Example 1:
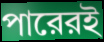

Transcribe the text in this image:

পারেরই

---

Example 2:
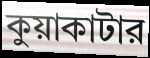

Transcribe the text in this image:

কুয়াকাটার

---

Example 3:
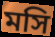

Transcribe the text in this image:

মসি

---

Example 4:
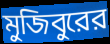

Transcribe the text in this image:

মুজিবুরের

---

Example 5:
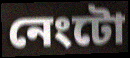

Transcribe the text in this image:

নেংটো